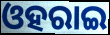
ଓହରାଇ